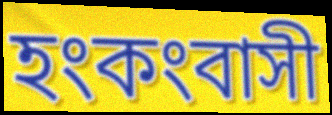
হংকংবাসী